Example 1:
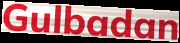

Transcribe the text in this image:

Gulbadan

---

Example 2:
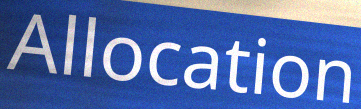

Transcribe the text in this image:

Allocation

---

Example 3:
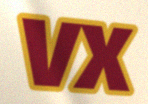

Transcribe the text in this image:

vx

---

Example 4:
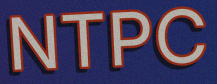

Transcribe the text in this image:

NTPC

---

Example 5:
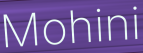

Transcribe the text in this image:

Mohini